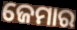
ଜେମାର